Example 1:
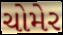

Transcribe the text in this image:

ચોમેર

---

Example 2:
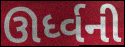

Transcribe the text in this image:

ઊર્ધ્વની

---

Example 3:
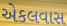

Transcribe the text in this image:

એકલવાસ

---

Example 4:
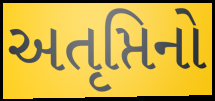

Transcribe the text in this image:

અતૃપ્તિનો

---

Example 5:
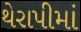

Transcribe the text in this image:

થેરાપીમાં